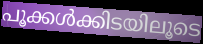
പൂക്കൾക്കിടയിലൂടെ